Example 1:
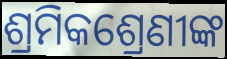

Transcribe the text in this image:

ଶ୍ରମିକଶ୍ରେଣୀଙ୍କ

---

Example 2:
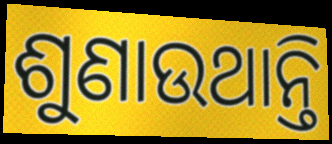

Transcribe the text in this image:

ଶୁଣାଉଥାନ୍ତି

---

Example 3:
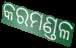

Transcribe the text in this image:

କରମଣ୍ଡଳ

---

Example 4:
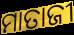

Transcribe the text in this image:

ମାତାଜୀ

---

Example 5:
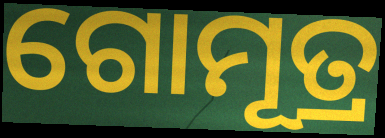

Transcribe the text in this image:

ଗୋମୂତ୍ର